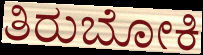
ತಿರುಬೋಕಿ